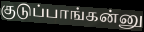
குடுப்பாங்கன்னு